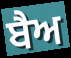
ਬੈਅ